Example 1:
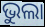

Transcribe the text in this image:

ଭୁଲା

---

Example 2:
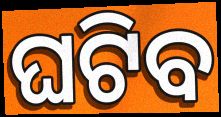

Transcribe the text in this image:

ଘଟିବ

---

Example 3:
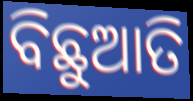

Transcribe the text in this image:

ବିଛୁଆତି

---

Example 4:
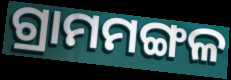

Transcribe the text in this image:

ଗ୍ରାମମଙ୍ଗଳ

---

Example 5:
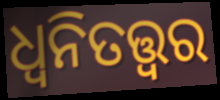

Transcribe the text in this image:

ଧ୍ଵନିତତ୍ତ୍ଵର